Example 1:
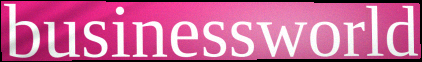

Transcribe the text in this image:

businessworld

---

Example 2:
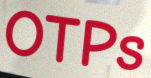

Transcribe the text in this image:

OTPs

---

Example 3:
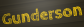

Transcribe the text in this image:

Gunderson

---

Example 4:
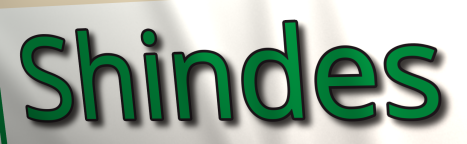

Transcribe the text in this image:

Shindes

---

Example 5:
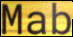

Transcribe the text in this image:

Mab